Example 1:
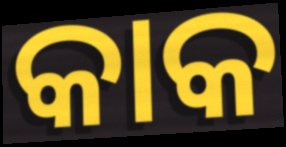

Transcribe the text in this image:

କାକ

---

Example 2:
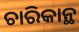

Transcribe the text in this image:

ଚାରିକାନ୍ଥ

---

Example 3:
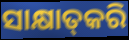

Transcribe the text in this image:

ସାକ୍ଷାତ୍‌କରି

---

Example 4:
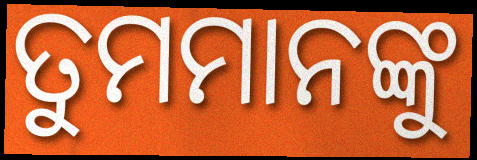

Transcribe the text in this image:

ତୁମମାନଙ୍କୁ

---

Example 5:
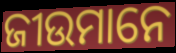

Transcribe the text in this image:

ଜୀଉମାନେ